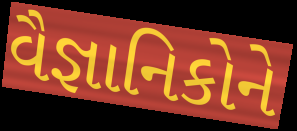
વૈજ્ઞાનિકોને